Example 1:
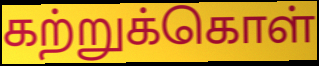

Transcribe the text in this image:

கற்றுக்கொள்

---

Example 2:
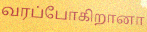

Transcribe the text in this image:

வரப்போகிறானா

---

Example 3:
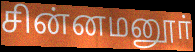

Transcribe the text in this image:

சின்னமனூர்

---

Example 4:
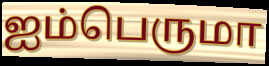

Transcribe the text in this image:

ஐம்பெருமா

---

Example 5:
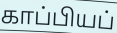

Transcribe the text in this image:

காப்பியப்